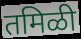
तमिळी